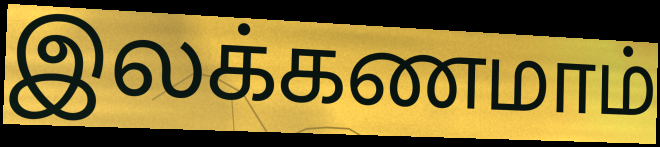
இலக்கணமாம்